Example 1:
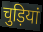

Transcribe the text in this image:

चुड़ियां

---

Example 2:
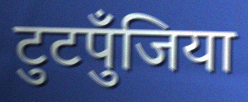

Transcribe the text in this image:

टुटपुँजिया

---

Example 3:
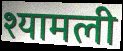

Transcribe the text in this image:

श्यामली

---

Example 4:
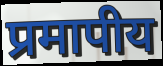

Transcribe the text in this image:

प्रमापीय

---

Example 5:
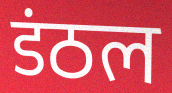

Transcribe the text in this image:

डंठल